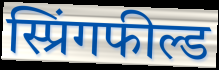
स्प्रिंगफील्ड